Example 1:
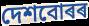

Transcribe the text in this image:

দেশবোৰৰ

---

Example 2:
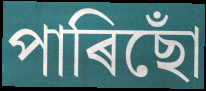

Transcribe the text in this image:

পাৰিছোঁ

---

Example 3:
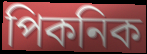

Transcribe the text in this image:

পিকনিক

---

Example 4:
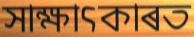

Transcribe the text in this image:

সাক্ষাৎকাৰত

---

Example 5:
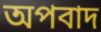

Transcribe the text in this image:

অপবাদ